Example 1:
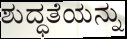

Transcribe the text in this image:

ಶುದ್ಧತೆಯನ್ನು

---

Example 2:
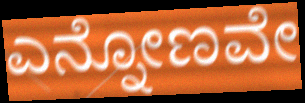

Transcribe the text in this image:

ಎನ್ನೋಣವೇ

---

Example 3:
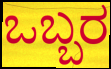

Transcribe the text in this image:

ಒಬ್ಬರ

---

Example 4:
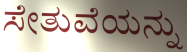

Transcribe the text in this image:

ಸೇತುವೆಯನ್ನು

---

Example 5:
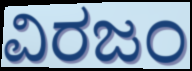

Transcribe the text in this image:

ವಿರಜಂ